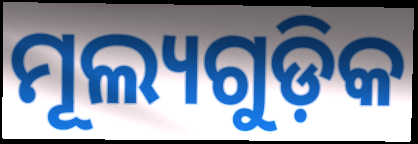
ମୂଲ୍ୟଗୁଡ଼ିକ